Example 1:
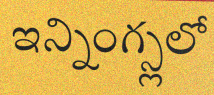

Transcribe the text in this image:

ఇన్నింగ్స్లలో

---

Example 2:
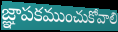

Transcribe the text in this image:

జ్ఞాపకముంచుకోవాలి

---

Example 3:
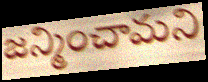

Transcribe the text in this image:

జన్మించామని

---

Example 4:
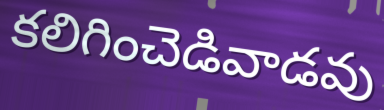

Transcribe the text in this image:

కలిగించెడివాడవు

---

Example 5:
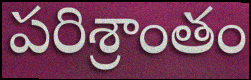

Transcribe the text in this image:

పరిశ్రాంతం